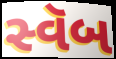
સ્વૅબ